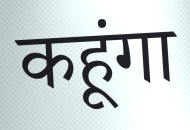
कहूंगा